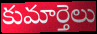
కుమార్తెలు